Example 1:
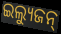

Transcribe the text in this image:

ଇଲ୍ୟୁଜନ୍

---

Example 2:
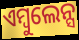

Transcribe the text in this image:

ଏମ୍ବୁଲେନ୍ସ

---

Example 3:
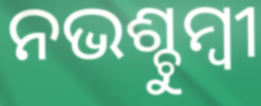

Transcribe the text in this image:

ନଭଶ୍ଚୁମ୍ବୀ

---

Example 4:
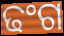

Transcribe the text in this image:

ଢଂଗ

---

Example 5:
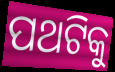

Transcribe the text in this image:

ପଥଟିକୁ